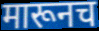
मारूनच